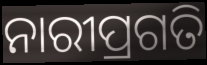
ନାରୀପ୍ରଗତି